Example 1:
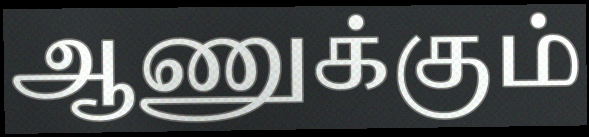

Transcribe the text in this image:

ஆணுக்கும்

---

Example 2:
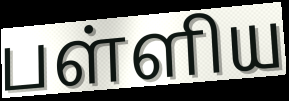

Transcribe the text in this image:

பள்ளிய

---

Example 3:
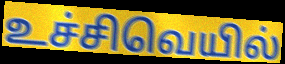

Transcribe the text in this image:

உச்சிவெயில்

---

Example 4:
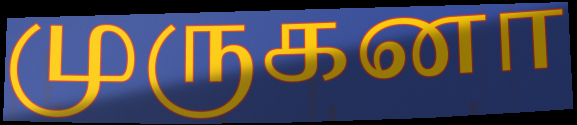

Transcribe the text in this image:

முருகனா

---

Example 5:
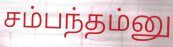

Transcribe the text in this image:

சம்பந்தம்னு